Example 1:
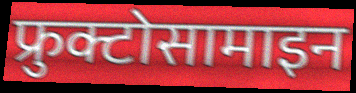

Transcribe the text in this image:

फ्रुक्टोसामाइन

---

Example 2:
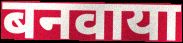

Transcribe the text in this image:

बनवाया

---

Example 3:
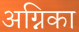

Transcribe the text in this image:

अग्निका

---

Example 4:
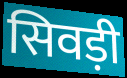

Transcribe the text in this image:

सिवड़ी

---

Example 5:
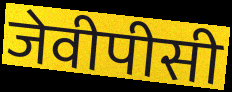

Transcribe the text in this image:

जेवीपीसी